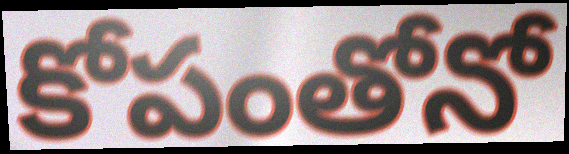
కోపంతోనో